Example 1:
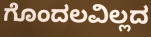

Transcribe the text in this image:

ಗೊಂದಲವಿಲ್ಲದ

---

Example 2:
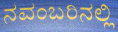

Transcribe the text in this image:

ನವಂಬರಿನಲ್ಲಿ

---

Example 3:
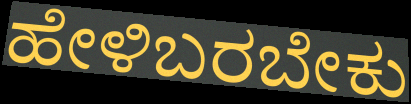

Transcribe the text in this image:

ಹೇಳಿಬರಬೇಕು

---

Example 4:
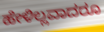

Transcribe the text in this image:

ಹೇಳಿಲ್ಲವಾದರೂ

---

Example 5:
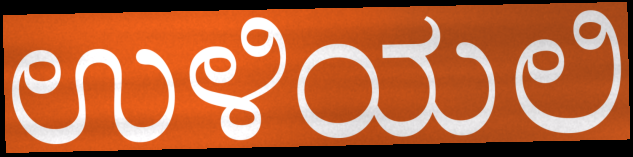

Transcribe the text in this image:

ಉಳಿಯಲಿ